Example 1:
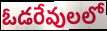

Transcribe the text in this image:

ఓడరేవులలో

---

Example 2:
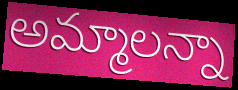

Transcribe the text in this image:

అమ్మాలన్నా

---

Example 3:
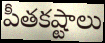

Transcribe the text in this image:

పీతకష్టాలు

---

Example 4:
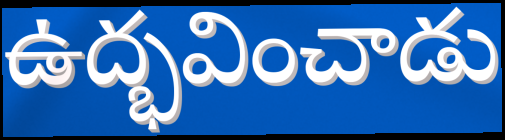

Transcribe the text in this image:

ఉద్భవించాడు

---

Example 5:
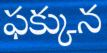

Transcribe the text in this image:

ఫక్కున